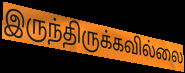
இருந்திருக்கவில்லை